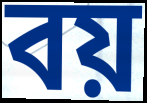
বয়